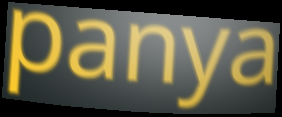
panya